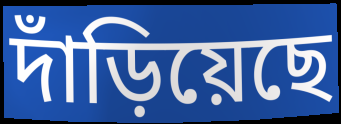
দাঁড়িয়েছে